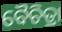
ବୈଚିତ୍ରା